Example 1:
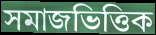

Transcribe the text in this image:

সমাজভিত্তিক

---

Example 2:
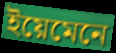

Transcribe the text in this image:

ইয়েমেনে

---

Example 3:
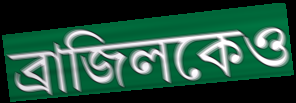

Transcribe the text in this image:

ব্রাজিলকেও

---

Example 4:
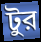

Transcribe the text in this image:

টুর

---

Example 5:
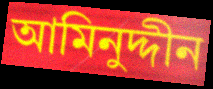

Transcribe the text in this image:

আমিনুদ্দীন